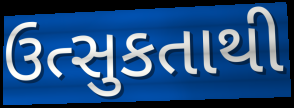
ઉત્સુકતાથી